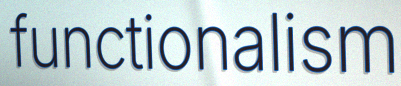
functionalism